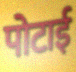
पोटाई